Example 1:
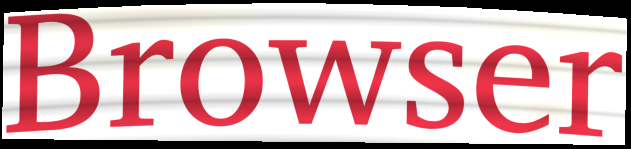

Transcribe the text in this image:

Browser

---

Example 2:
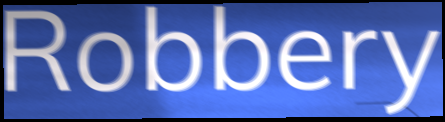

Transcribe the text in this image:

Robbery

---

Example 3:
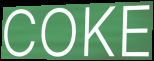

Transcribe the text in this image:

COKE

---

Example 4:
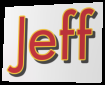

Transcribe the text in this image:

Jeff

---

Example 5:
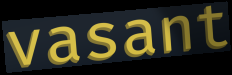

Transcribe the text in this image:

vasant